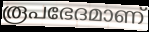
രൂപഭേദമാണ്